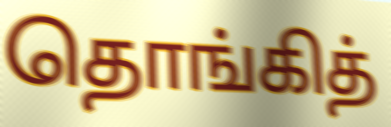
தொங்கித்